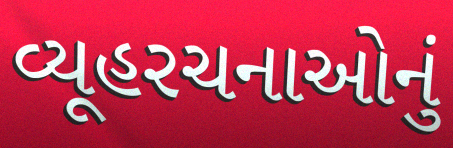
વ્યૂહરચનાઓનું